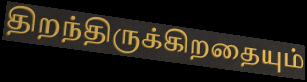
திறந்திருக்கிறதையும்